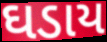
ઘડાય